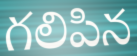
గలిపిన